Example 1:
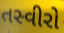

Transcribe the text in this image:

તસ્વીરો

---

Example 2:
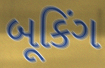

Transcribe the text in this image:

બૂકિંગ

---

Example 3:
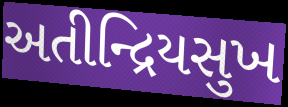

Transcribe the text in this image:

અતીન્દ્રિયસુખ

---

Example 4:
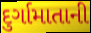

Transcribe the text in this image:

દુર્ગામાતાની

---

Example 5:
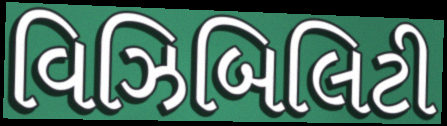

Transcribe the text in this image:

વિઝિબિલિટી